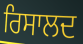
ਰਿਸਾਲਦ